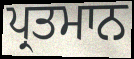
ਪ੍ਰਤਮਾਨ